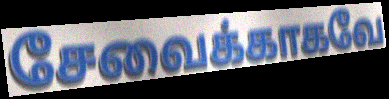
சேவைக்காகவே